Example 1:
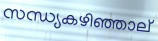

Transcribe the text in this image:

സന്ധ്യകഴിഞ്ഞാല്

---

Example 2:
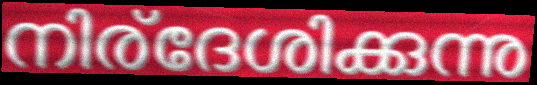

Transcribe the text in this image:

നിര്ദേശിക്കുന്നു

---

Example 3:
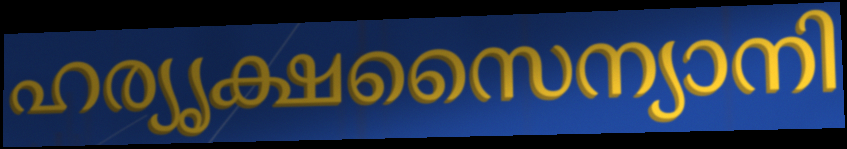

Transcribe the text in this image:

ഹര്യൃക്ഷസൈന്യാനി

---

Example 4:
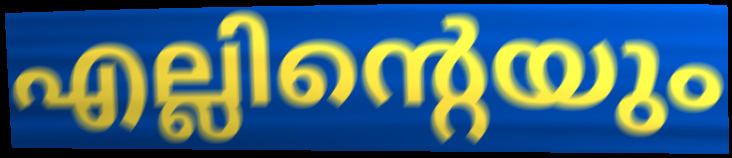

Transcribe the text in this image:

എല്ലിന്റെയും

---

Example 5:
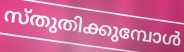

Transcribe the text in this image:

സ്തുതിക്കുമ്പോൾ